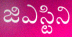
జిఎస్టిని